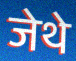
जेथे